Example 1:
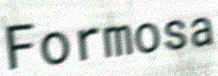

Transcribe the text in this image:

Formosa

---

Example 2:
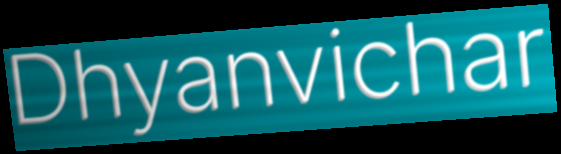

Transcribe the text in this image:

Dhyanvichar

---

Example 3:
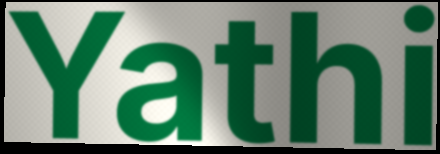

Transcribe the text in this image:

Yathi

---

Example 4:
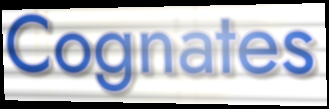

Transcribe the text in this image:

Cognates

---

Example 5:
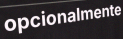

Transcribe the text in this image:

opcionalmente